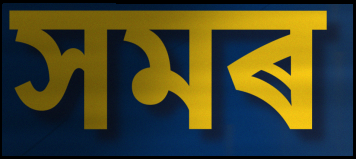
সমৰ